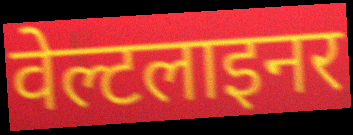
वेल्टलाइनर